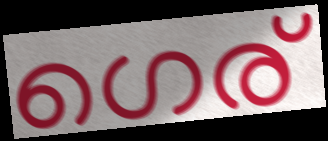
ഗെര്